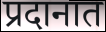
प्रदानात